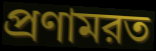
প্রণামরত